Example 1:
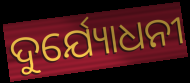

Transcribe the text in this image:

ଦୁର୍ଯ୍ୟୋଧନୀ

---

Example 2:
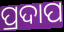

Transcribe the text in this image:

ପ୍ରଦାପ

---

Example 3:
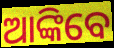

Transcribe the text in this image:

ଆଙ୍କିବେ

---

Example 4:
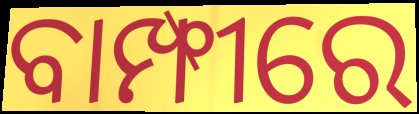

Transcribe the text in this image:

ବାମ୍ଫୀରେ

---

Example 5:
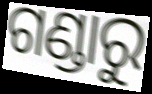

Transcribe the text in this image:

ଗଣ୍ଡାରୁ